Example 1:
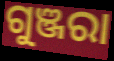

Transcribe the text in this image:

ଗୁଞ୍ଜରା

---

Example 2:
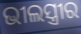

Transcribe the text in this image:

ଭୀଲସ୍ତ୍ରୀର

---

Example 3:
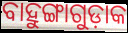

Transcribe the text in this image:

ବାହୁଙ୍ଗାଗୁଡ଼ାକ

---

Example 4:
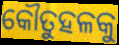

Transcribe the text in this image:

କୌତୁହଳକୁ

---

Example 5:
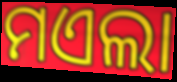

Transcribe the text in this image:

ମଏଲା